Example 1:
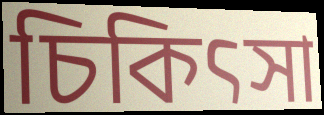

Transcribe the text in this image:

চিকিৎসা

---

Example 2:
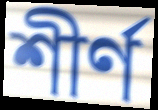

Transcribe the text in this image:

শীর্ণ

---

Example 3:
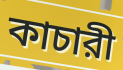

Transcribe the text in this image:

কাচারী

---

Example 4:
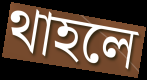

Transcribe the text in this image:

থাহলে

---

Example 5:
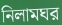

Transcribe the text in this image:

নিলামঘর